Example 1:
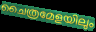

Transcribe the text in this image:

ചൈത്രമേളയിലും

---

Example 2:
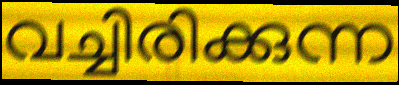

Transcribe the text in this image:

വച്ചിരിക്കുന്ന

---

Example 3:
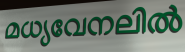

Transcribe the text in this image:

മധ്യവേനലിൽ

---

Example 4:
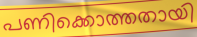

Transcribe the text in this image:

പണിക്കൊത്തതായി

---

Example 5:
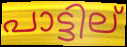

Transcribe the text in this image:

പാട്ടില്